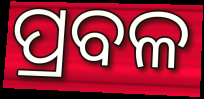
ପ୍ରବଳ